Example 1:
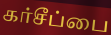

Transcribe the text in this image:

கர்சீப்பை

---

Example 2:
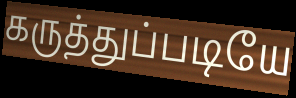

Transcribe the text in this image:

கருத்துப்படியே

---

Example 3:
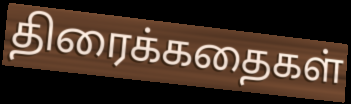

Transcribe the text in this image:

திரைக்கதைகள்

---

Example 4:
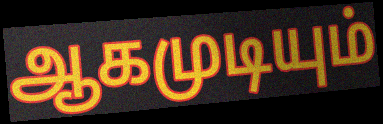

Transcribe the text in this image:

ஆகமுடியும்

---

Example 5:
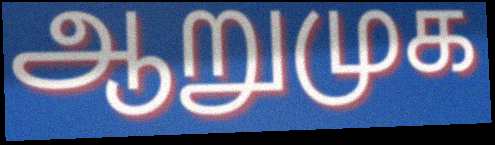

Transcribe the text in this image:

ஆறுமுக